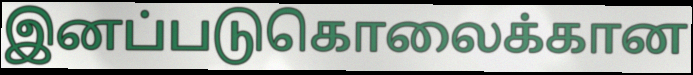
இனப்படுகொலைக்கான